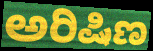
ಅರಿಷಿಣ